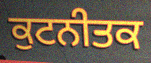
ਕੁਟਨੀਤਕ